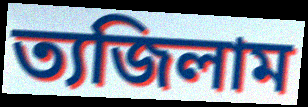
ত্যজিলাম